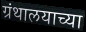
ग्रंथालयाच्या